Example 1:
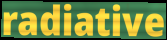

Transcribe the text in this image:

radiative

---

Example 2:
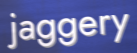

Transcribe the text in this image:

jaggery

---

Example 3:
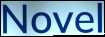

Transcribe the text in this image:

Novel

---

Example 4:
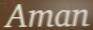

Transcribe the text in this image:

Aman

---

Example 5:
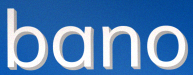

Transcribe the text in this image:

bano